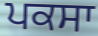
ਪਕਸਾ